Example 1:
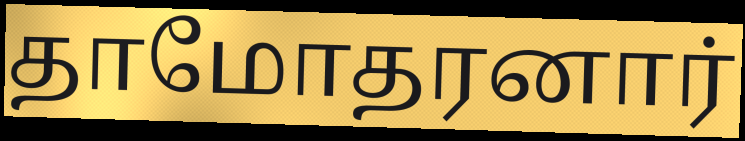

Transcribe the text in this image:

தாமோதரனார்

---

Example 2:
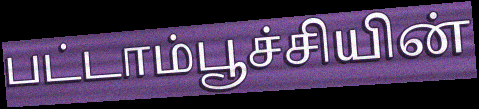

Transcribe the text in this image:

பட்டாம்பூச்சியின்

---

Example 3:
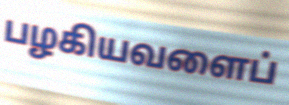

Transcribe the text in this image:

பழகியவளைப்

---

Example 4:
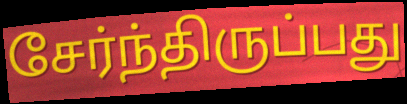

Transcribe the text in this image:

சேர்ந்திருப்பது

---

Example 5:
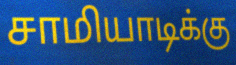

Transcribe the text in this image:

சாமியாடிக்கு